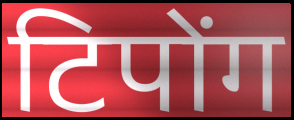
टिपोंग